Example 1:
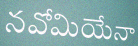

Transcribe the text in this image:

నవోమియేనా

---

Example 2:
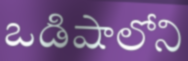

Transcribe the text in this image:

ఒడిషాలోని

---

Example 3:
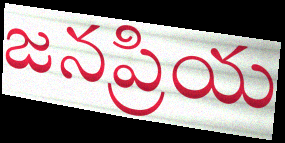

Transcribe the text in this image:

జనప్రియ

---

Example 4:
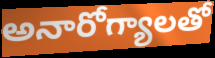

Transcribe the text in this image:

అనారోగ్యాలతో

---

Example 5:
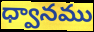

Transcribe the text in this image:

ధ్వానము